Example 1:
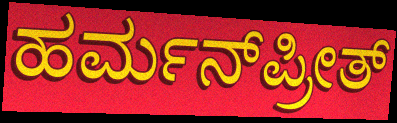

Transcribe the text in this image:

ಹರ್ಮನ್‌ಪ್ರೀತ್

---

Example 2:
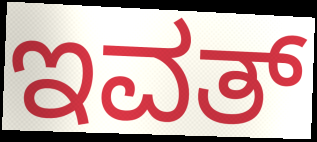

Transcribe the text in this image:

ಇವತ್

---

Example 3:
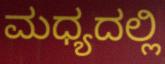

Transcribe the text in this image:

ಮಧ್ಯದಲ್ಲಿ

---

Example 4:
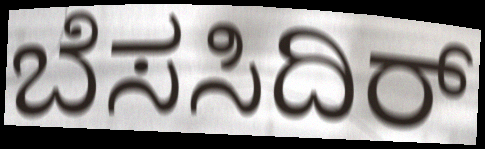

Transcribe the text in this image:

ಬೆಸಸಿದಿರ್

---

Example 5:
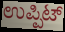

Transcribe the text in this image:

ಉಪ್ಪಿಟ್